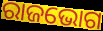
ରାଜଭୋଗ